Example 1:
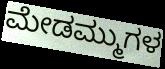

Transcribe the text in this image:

ಮೇಡಮ್ಮುಗಳ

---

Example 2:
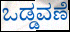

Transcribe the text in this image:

ಒಡ್ಡವಣೆ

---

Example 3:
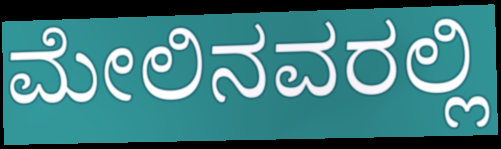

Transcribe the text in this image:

ಮೇಲಿನವರಲ್ಲಿ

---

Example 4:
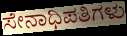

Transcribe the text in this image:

ಸೇನಾಧಿಪತಿಗಳು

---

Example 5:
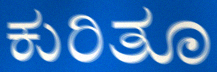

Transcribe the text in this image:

ಕುರಿತೂ